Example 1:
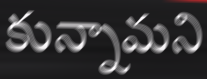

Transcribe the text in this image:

కున్నామని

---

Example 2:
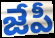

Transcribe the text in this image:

జేపీ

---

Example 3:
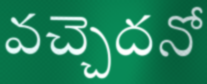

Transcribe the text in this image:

వచ్చెదనో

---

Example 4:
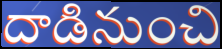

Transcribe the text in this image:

దాడినుంచి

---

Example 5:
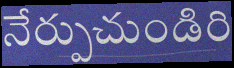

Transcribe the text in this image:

నేర్పుచుండిరి